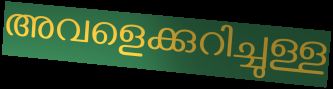
അവളെക്കുറിച്ചുള്ള